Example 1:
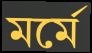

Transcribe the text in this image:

মর্মে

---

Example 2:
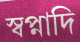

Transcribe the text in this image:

স্বপ্নাদি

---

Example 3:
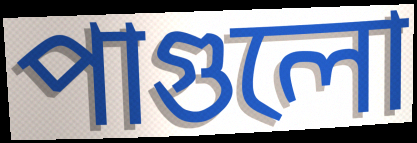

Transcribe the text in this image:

পাগুলো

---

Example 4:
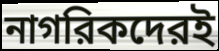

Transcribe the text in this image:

নাগরিকদেরই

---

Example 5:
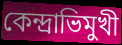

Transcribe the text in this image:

কেন্দ্রাভিমুখী